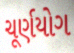
ચૂર્ણયોગ